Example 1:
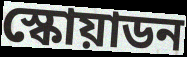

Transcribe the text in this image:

স্কোয়াডন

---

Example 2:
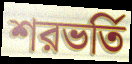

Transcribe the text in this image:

শরভর্তি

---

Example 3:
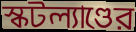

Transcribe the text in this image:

স্কটল্যাণ্ডের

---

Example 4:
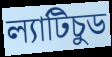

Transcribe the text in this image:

ল্যাটিচুড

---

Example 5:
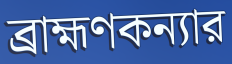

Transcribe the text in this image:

ব্রাহ্মণকন্যার